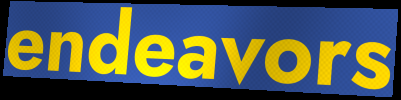
endeavors